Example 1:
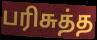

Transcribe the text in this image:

பரிசுத்த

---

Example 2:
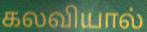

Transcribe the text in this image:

கலவியால்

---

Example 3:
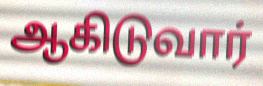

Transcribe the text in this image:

ஆகிடுவார்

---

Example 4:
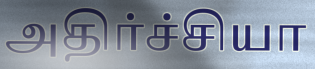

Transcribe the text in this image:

அதிர்ச்சியா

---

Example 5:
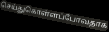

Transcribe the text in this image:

செய்துகொள்ளப்போவதாக